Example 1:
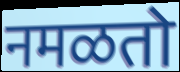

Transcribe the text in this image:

नमळतो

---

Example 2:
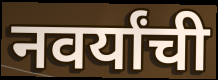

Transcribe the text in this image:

नवर्यांची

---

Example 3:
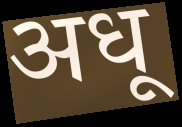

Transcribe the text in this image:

अधू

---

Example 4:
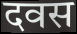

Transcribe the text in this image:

दवस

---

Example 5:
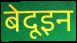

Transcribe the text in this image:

बेदूइन